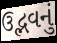
ઉદ્ભવનું